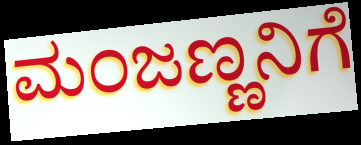
ಮಂಜಣ್ಣನಿಗೆ